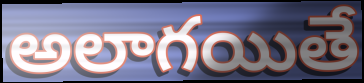
అలాగయితే